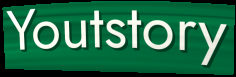
Youtstory